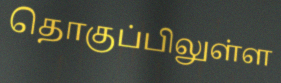
தொகுப்பிலுள்ள